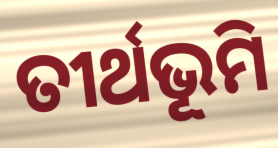
ତୀର୍ଥଭୂମି